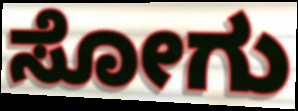
ಸೋಗು